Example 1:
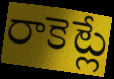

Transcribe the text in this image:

రాకెట్లే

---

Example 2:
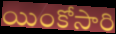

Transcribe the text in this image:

యింకోసారి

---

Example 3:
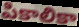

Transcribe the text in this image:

పికాలికా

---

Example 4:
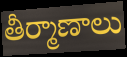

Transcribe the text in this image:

తీర్మాణాలు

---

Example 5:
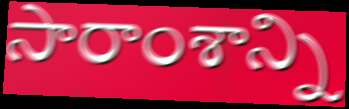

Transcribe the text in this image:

సారాంశాన్ని